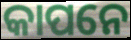
କାପନେ